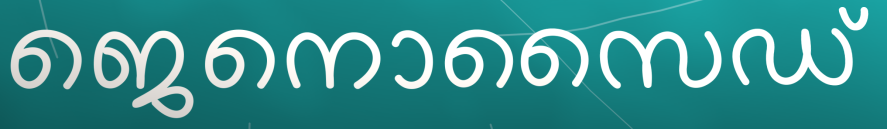
ജെനൊസൈഡ്